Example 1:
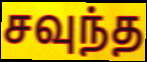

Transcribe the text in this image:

சவுந்த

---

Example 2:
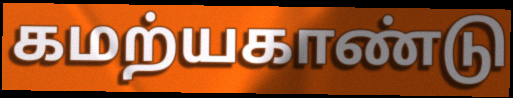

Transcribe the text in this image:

கமற்யகாண்டு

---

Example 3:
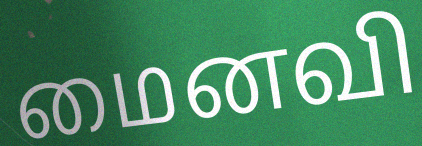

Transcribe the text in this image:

மைனவி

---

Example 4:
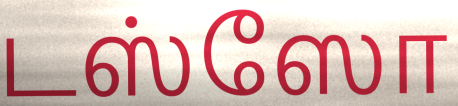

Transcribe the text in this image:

டஸ்ஸோ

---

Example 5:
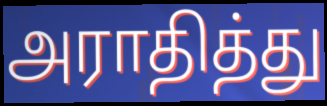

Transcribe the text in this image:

அராதித்து